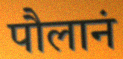
पौलानं